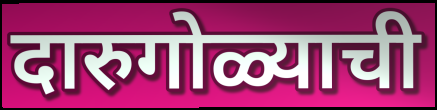
दारुगोळ्याची